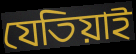
যেতিয়াই